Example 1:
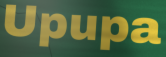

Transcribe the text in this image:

Upupa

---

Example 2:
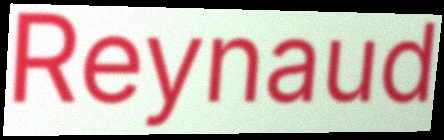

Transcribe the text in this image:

Reynaud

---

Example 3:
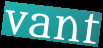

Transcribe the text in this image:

vant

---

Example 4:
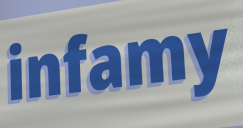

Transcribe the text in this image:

infamy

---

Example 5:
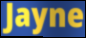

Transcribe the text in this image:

Jayne